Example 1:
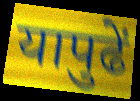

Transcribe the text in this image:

यापुढें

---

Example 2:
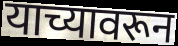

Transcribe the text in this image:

याच्यावरून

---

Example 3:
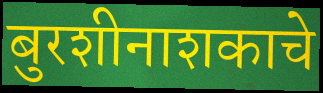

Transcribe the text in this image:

बुरशीनाशकाचे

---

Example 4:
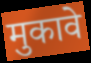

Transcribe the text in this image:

मुकावे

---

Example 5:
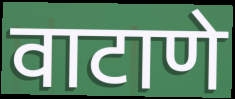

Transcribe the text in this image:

वाटाणे